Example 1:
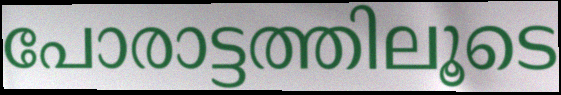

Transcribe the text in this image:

പോരാട്ടത്തിലൂടെ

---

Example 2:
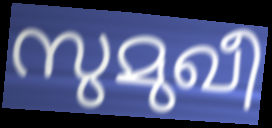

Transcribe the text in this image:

സുമുഖീ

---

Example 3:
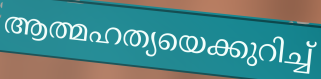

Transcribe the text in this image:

ആത്മഹത്യയെക്കുറിച്ച്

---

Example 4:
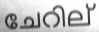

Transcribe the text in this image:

ചേറില്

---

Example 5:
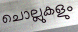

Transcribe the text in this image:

ചൊല്ലുകളും